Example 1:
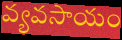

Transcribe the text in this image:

వ్యవసాయం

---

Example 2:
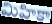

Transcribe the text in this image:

మిహికా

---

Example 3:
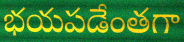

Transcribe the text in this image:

భయపడేంతగా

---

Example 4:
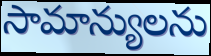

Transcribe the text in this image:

సామాన్యులను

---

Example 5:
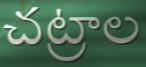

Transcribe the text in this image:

చట్రాల